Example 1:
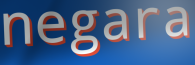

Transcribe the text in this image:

negara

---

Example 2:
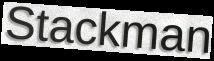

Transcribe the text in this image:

Stackman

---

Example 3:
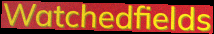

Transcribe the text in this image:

Watchedfields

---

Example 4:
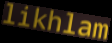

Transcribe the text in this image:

likhlam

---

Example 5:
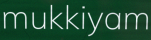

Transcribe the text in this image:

mukkiyam